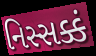
નિસ્સક્કં